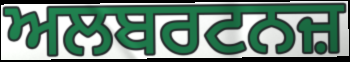
ਅਲਬਰਟਨਜ਼